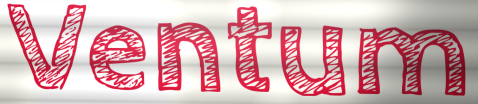
Ventum